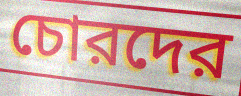
চোরদের